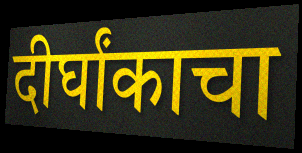
दीर्घांकाचा